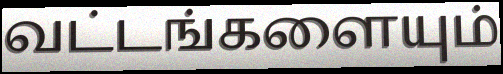
வட்டங்களையும்